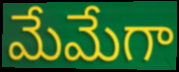
మేమేగా